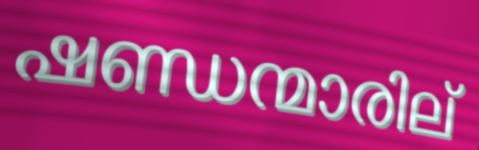
ഷണ്ഡന്മാരില്